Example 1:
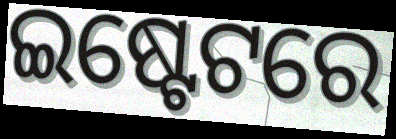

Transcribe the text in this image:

ଇଷ୍ଟେଟରେ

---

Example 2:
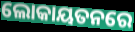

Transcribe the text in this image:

ଲୋକାୟତନରେ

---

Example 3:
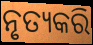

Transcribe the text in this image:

ନୃତ୍ୟକରି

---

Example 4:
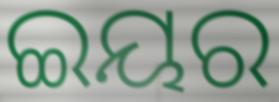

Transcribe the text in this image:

ଇୟର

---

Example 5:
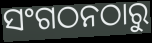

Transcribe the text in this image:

ସଂଗଠନଠାରୁ